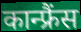
कान्फ्रैंस